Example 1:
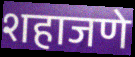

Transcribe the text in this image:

शहाजणे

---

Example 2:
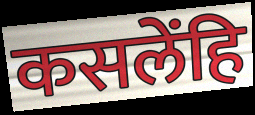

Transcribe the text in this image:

कसलेंहि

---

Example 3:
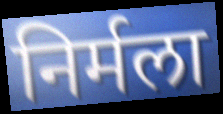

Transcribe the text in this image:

निर्मला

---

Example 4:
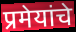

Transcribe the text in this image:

प्रमेयांचे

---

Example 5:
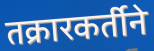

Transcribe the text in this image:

तक्रारकर्तीने